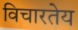
विचारतेय